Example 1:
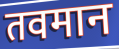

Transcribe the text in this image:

तवमान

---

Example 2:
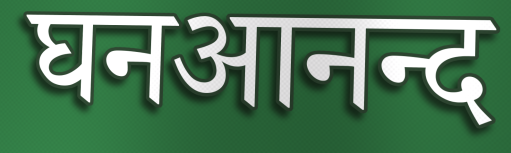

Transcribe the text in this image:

घनआनन्द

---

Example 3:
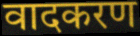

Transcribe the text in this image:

वादकरण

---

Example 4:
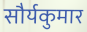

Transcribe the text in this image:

सौर्यकुमार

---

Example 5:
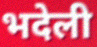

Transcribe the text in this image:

भदेली